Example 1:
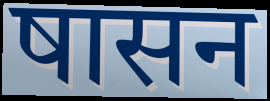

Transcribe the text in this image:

षासन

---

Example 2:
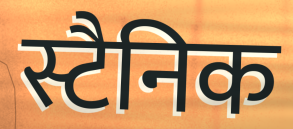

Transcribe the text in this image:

स्टैनिक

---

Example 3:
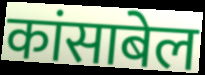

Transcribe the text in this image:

कांसाबेल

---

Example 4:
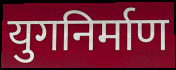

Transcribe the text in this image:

युगनिर्माण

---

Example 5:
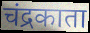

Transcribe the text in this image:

चंद्रकाता